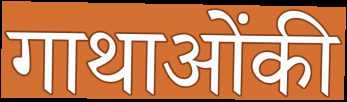
गाथाओंकी